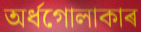
অৰ্ধগোলাকাৰ